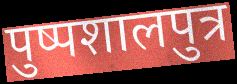
पुष्पशालपुत्र